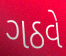
ગઠવે